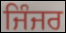
ਜਿੰਜਰ